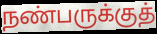
நண்பருக்குத்